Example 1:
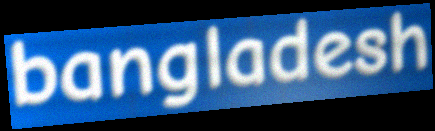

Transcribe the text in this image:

bangladesh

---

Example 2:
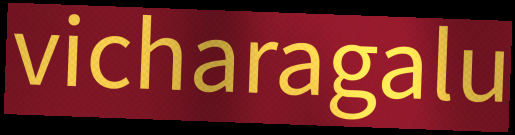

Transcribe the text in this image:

vicharagalu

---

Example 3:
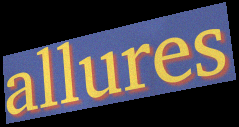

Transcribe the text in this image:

allures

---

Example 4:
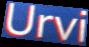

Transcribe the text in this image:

Urvi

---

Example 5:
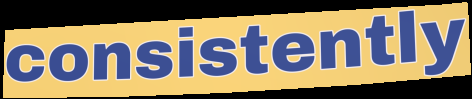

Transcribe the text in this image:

consistently